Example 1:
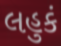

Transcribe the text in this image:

લહુકં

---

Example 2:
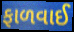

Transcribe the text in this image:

ફાળવાઈ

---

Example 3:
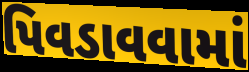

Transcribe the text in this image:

પિવડાવવામાં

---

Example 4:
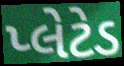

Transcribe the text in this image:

પ્લેટેડ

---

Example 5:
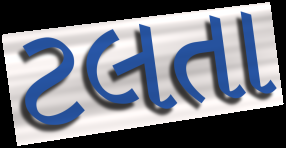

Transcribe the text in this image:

ટલતા